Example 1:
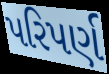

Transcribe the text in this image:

પરિપર્ણ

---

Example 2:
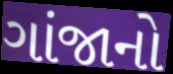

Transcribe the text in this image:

ગાંજાનો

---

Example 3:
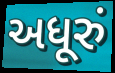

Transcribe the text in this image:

અધૂરું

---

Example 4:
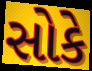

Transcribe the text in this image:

સોકે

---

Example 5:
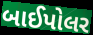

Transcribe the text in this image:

બાઈપોલર